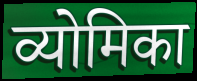
व्योमिका